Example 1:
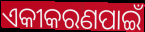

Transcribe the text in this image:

ଏକୀକରଣପାଇଁ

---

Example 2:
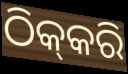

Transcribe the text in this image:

ଠିକ୍‍କରି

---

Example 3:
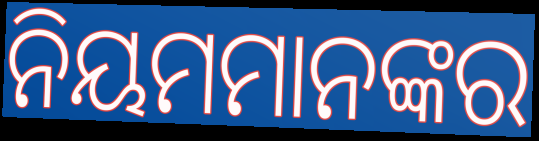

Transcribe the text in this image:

ନିୟମମାନଙ୍କର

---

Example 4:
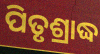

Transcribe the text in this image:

ପିତୃଶ୍ରାଦ୍ଧ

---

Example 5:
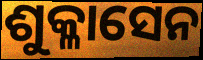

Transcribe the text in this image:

ଶୁକ୍ଳାସେନ